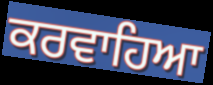
ਕਰਵਾਹਿਆ